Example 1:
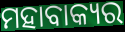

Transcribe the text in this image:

ମହାବାକ୍ୟର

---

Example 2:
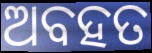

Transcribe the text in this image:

ଅବହତ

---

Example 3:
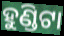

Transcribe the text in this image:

ହୁଣ୍ଡିଟା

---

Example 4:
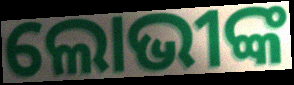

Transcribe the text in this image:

ଲୋଭୀଙ୍କ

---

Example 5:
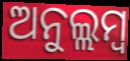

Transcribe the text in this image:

ଅନୁଲ୍ଲମ୍ବ